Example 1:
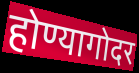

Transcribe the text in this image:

होण्यागोदर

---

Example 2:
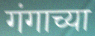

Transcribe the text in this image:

गंगाच्या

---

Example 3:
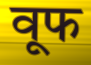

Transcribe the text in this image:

वूफ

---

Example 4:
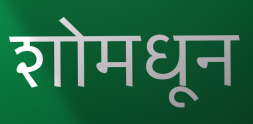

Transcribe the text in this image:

शोमधून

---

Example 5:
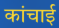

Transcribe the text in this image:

कांचाई